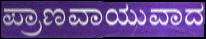
ಪ್ರಾಣವಾಯುವಾದ